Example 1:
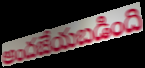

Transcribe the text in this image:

అందజేయబడింది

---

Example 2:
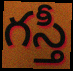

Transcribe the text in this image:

గస్తీ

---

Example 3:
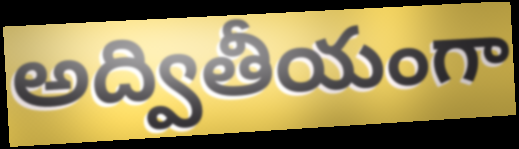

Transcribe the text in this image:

అద్వితీయంగా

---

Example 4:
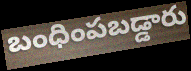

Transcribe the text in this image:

బంధింపబడ్డారు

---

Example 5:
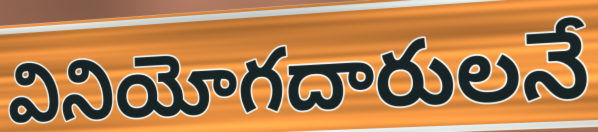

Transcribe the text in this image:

వినియోగదారులనే